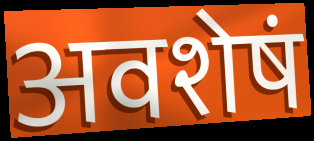
अवशेषं